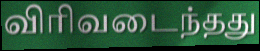
விரிவடைந்தது